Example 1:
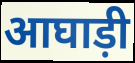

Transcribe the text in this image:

आघाड़ी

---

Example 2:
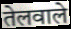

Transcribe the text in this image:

तेलवाले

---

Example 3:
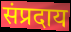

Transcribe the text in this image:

संप्रदाय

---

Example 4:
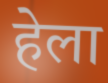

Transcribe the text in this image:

हेला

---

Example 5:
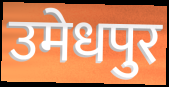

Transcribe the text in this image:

उमेधपुर